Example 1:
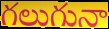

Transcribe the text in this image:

గలుగునా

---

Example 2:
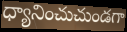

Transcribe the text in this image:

ధ్యానించుచుండగా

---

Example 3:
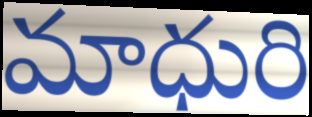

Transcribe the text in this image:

మాధురి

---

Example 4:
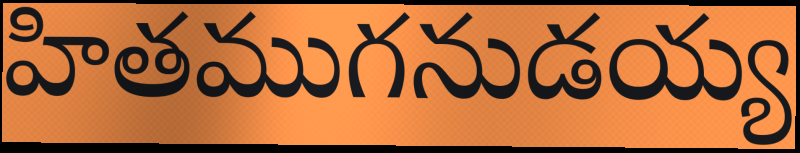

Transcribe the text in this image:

హితముగనుడయ్య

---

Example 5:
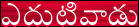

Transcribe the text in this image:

ఎదుటివాడు